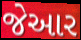
જેઆર